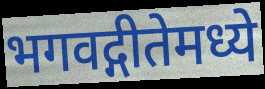
भगवद्गीतेमध्ये